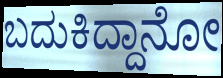
ಬದುಕಿದ್ದಾನೋ